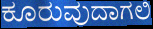
ಕೂರುವುದಾಗಲಿ